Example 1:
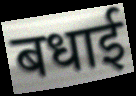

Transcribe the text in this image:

बधाई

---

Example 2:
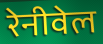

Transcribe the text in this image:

रेनीवेल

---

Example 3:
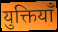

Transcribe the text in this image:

युक्तियाँ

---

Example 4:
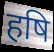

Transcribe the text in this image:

हषि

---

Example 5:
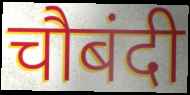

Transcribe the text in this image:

चौबंदी